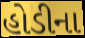
હોડીના